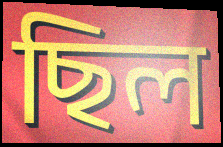
ছিল